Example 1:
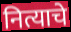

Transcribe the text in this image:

नित्याचे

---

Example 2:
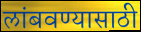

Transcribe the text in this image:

लांबवण्यासाठी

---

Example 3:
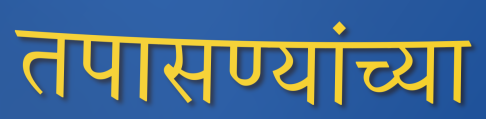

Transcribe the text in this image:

तपासण्यांच्या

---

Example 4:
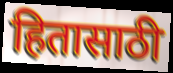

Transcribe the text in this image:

हितासाठी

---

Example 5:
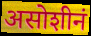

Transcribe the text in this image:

असोशीनं